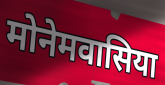
मोनेमवासिया